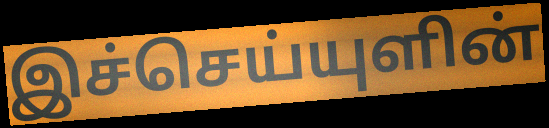
இச்செய்யுளின்